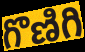
గొణిగి